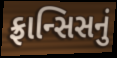
ફ્રાન્સિસનું